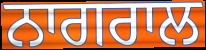
ਨਾਗਰਾਲ